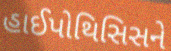
હાઈપોથિસિસને